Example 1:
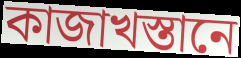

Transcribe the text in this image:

কাজাখস্তানে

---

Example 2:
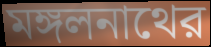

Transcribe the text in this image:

মঙ্গলনাথের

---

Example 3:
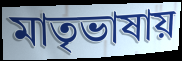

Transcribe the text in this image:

মাতৃভাষায়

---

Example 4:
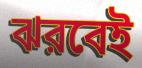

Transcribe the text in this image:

ঝরবেই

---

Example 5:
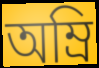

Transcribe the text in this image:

অম্রি